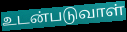
உடன்படுவாள்